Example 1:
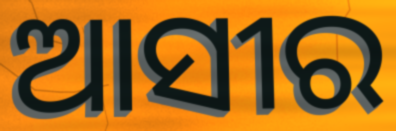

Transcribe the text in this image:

ଆସୀର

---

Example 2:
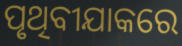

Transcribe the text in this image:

ପୃଥିବୀଯାକରେ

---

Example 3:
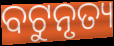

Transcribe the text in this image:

ବଟୁନୃତ୍ୟ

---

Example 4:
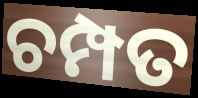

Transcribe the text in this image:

ଚମ୍ପତ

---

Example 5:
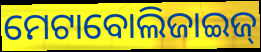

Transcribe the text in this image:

ମେଟାବୋଲିଜାଇଜ୍